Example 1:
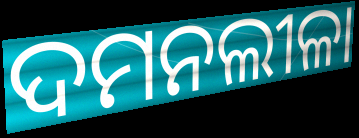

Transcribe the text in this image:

ଦମନଲୀଳା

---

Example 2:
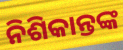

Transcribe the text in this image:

ନିଶିକାନ୍ତଙ୍କ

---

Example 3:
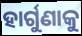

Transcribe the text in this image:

ହାର୍ଗୁଣାକୁ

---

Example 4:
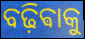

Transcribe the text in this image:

ବଢ଼ିଵାକୁ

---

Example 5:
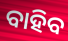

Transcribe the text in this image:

ବାହିବ